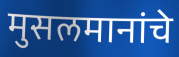
मुसलमानांचे